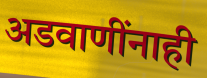
अडवाणींनाही